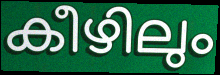
കീഴിലും